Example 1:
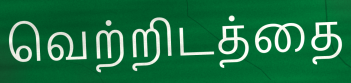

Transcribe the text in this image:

வெற்றிடத்தை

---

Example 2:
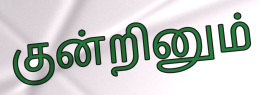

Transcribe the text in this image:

குன்றினும்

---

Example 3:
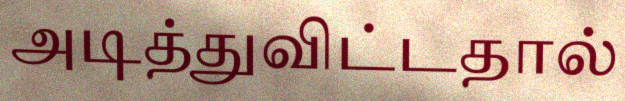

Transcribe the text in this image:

அடித்துவிட்டதால்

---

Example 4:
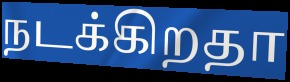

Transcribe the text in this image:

நடக்கிறதா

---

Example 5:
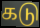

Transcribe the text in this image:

கடு